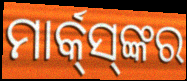
ମାର୍କ୍‌ସ୍‌ଙ୍କର